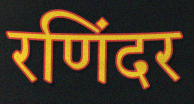
रणिंदर